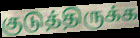
குடுத்திருக்க